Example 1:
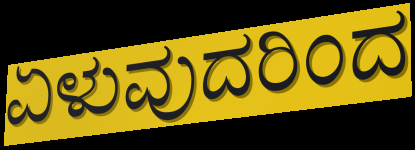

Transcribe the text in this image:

ಏಳುವುದರಿಂದ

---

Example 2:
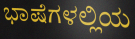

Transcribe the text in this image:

ಭಾಷೆಗಳಲ್ಲಿಯ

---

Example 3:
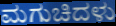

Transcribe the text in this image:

ಮಗುಚಿದಳು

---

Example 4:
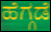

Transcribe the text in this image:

ಹೆಗ್ಗಡೆ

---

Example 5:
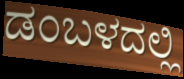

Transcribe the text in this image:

ಡಂಬಳದಲ್ಲಿ